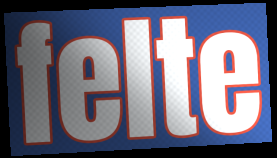
felte